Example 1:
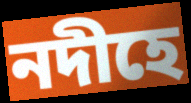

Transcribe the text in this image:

নদীহে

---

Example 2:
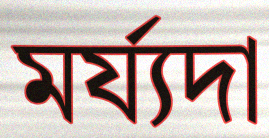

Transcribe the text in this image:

মৰ্য্যদা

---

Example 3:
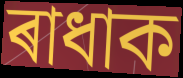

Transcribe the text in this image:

ৰাধাক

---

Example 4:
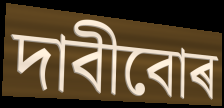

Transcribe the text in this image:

দাবীবোৰ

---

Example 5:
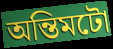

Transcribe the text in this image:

অন্তিমটো